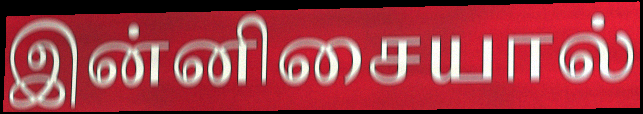
இன்னிசையால்